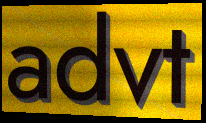
advt